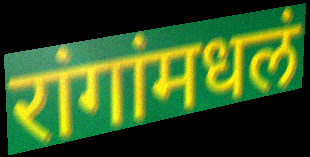
रांगांमधलं